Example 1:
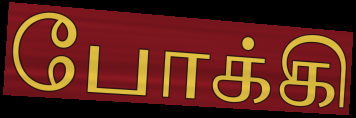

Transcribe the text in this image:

போக்கி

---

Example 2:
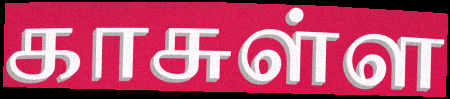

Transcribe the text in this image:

காசுள்ள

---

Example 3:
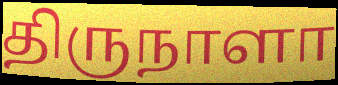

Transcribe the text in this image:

திருநாளா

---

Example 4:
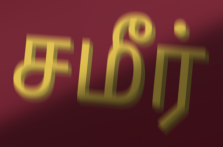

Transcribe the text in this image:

சமீர்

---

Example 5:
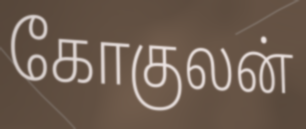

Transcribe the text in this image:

கோகுலன்